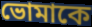
ভোমাকে